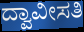
ದ್ವಾವೀಸತಿ